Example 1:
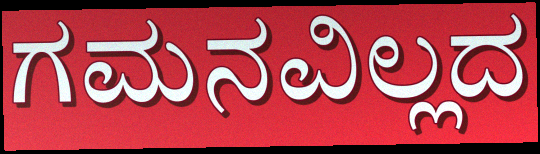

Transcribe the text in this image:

ಗಮನವಿಲ್ಲದ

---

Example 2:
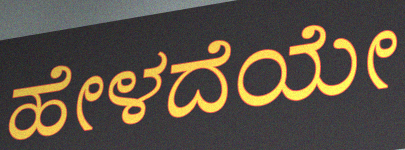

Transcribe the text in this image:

ಹೇಳದೆಯೇ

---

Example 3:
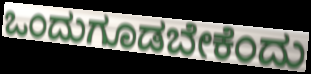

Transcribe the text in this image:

ಒಂದುಗೂಡಬೇಕೆಂದು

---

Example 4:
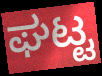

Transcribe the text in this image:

ಘಟ್ಟ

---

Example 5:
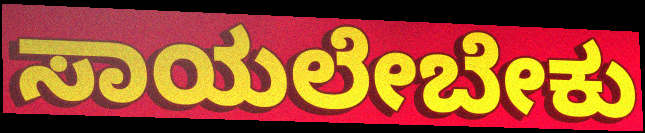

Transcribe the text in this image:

ಸಾಯಲೇಬೇಕು